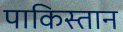
पाकिस्‍तान